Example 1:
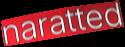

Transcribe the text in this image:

naratted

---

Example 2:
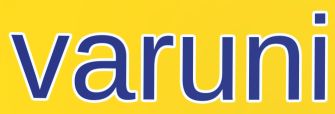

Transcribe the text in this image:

varuni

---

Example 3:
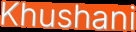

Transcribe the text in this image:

Khushani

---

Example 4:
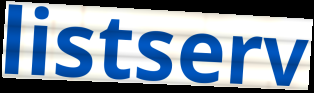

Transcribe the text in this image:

listserv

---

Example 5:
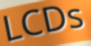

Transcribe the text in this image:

LCDs